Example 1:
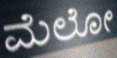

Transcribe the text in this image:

ಮೆಲೋ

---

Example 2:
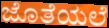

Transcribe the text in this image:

ಜೊತೆಯಲೆ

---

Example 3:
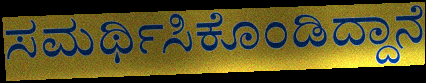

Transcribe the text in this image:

ಸಮರ್ಥಿಸಿಕೊಂಡಿದ್ದಾನೆ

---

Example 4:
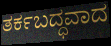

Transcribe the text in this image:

ತರ್ಕಬದ್ಧವಾದ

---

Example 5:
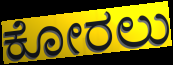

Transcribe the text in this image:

ಕೋರಲು